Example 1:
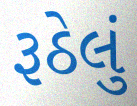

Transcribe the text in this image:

રૂઠેલું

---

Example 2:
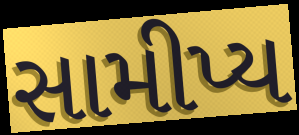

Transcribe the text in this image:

સામીપ્ય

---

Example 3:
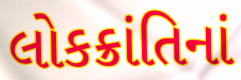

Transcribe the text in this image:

લોકક્રાંતિનાં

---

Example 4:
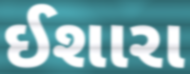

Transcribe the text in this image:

ઈશારા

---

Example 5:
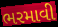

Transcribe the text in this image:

ભરમાવી